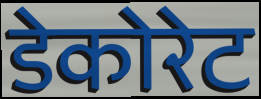
डेकोरेट